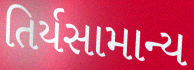
તિર્યસામાન્ય